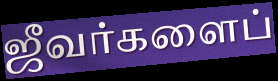
ஜீவர்களைப்